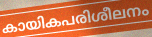
കായികപരിശീലനം